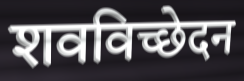
शवविच्छेदन